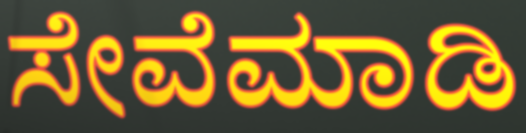
ಸೇವೆಮಾಡಿ